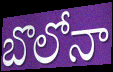
బొలోనా